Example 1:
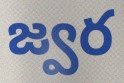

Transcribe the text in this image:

జ్వర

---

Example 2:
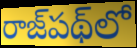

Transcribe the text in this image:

రాజ్‌పథ్‌లో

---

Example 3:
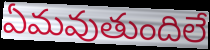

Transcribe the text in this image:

ఏమవుతుందిలే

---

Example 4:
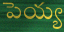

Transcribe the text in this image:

పెయ్య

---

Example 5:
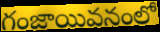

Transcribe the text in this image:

గంజాయివనంలో